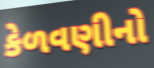
કેળવણીનો